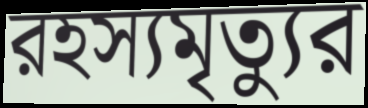
রহস্যমৃত্যুর